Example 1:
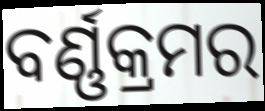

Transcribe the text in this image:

ବର୍ଣ୍ଣକ୍ରମର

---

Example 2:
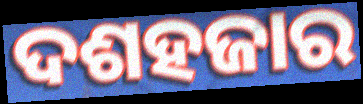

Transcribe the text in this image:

ଦଶହଜାର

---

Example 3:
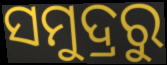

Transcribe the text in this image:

ସମୁଦ୍ରରୁ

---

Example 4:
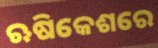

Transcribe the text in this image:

ଋଷିକେଶରେ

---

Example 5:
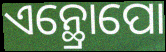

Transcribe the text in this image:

ଏନ୍ଥ୍ରୋପୋ